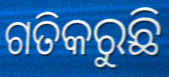
ଗତିକରୁଛି